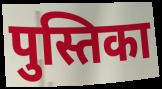
पुस्तिका